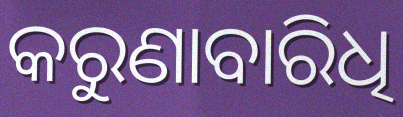
କରୁଣାବାରିଧି